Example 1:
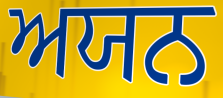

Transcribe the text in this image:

ਅਯਨ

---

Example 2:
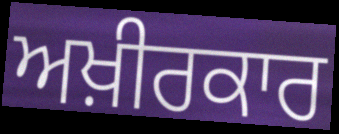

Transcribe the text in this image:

ਅਖ਼ੀਰਕਾਰ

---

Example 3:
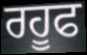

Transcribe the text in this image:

ਰਹੂਫ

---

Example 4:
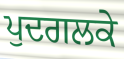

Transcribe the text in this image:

ਪੁਦਗਲਕੇ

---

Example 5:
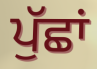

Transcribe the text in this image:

ਪੁੱਛਾਂ